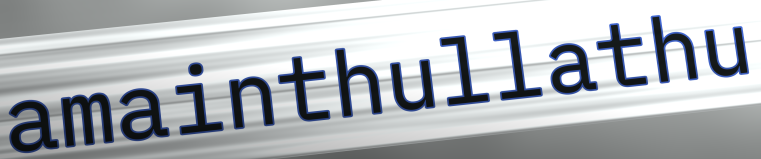
amainthullathu